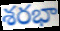
శరభా